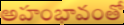
అహంభావంతో